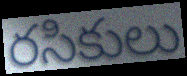
రసికులు